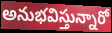
అనుభవిస్తున్నారో